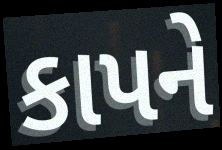
કાપને